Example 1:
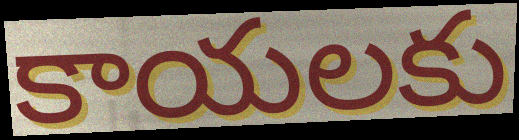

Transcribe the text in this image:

కాయలకు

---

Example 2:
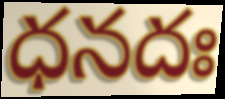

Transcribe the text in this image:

ధనదః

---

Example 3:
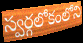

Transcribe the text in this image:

స్వర్గలోకంలోని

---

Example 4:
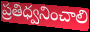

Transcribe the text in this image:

ప్రతిధ్వనించాలి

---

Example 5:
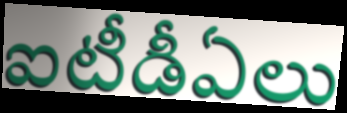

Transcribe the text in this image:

ఐటీడీఏలు